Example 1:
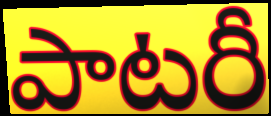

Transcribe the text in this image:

పాటరీ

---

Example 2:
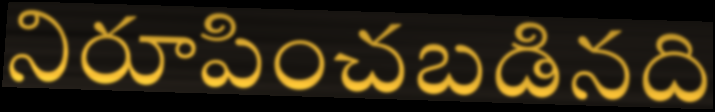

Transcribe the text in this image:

నిరూపించబడినది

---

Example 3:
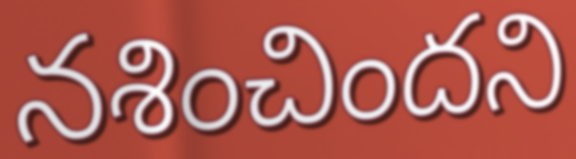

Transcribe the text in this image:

నశించిందని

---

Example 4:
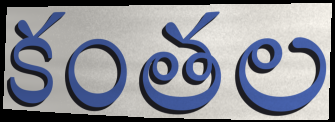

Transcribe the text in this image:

కంతల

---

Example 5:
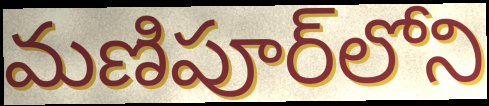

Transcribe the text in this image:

మణిపూర్‌లోని